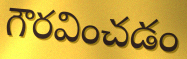
గౌరవించడం